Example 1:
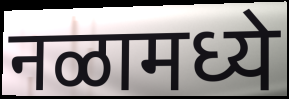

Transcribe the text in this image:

नळामध्ये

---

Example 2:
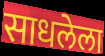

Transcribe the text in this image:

साधलेला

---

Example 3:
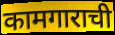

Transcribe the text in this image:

कामगाराची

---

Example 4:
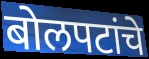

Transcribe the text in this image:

बोलपटांचे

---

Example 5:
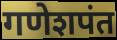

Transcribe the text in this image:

गणेशपंत